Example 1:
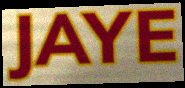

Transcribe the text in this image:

JAYE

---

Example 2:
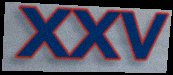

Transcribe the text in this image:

xxv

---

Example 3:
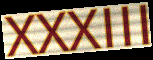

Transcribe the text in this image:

XXXIII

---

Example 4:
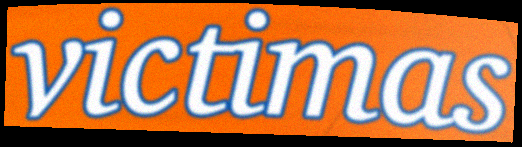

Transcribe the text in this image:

victimas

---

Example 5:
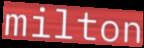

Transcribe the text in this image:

milton